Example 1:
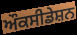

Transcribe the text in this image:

ਔਕਸੀਡੇਸ਼ਨ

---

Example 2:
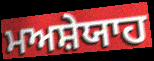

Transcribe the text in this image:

ਮਅਸ਼ੇਯਾਹ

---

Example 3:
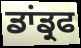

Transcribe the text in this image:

ਡਾਂਡ੍ਰਫ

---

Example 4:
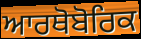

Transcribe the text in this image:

ਆਰਥੋਬੋਰਿਕ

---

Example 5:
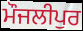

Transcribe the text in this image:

ਮੌਜਲੀਪੁਰ